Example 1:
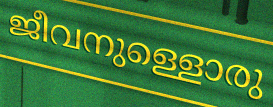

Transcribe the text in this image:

ജീവനുള്ളൊരു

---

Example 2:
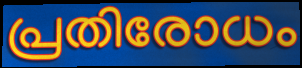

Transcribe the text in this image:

പ്രതിരോധം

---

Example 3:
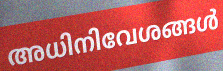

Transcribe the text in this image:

അധിനിവേശങ്ങൾ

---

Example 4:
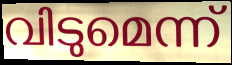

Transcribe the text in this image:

വിടുമെന്ന്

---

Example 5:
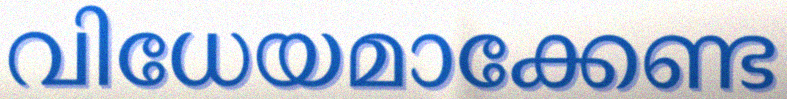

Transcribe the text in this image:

വിധേയമാക്കേണ്ട